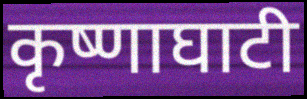
कृष्णाघाटी